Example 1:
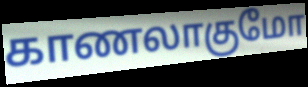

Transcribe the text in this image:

காணலாகுமோ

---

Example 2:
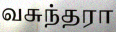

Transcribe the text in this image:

வசுந்தரா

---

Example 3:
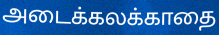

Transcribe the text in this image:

அடைக்கலக்காதை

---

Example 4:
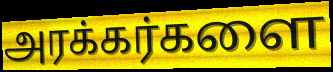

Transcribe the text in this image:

அரக்கர்களை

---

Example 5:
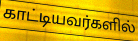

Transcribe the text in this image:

காட்டியவர்களில்